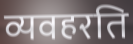
व्यवहरति